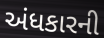
અંધકારની